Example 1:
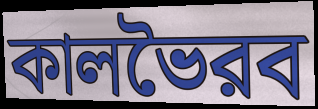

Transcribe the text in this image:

কালভৈরব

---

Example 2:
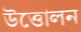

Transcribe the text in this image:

উত্তোলন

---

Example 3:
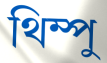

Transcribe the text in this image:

থিম্পু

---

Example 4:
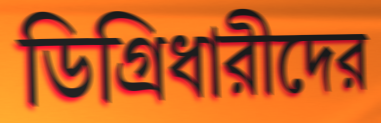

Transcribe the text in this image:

ডিগ্রিধারীদের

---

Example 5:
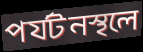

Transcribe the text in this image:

পর্যটনস্থলে